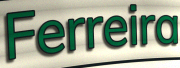
Ferreira